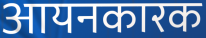
आयनकारक